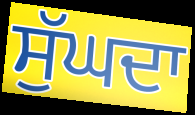
ਸੁੱਘਦਾ